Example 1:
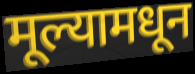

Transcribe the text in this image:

मूल्यामधून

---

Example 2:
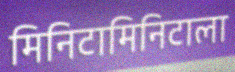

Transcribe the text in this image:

मिनिटामिनिटाला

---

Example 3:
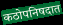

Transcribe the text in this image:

कठोपनिषदात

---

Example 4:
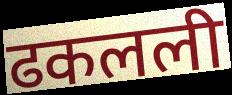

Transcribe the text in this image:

ढकलली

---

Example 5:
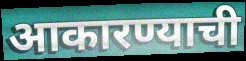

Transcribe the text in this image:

आकारण्याची